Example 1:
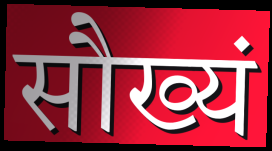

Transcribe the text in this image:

सौख्यं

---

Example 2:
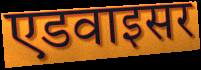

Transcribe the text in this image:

एडवाइसर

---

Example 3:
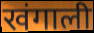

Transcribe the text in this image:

खंगाली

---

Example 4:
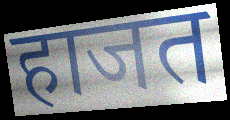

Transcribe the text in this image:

हाजत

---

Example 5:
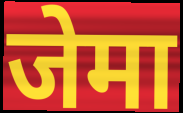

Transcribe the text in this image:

जेमा